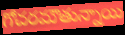
గోచరమౌతున్నాయి